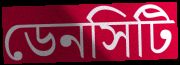
ডেনসিটি